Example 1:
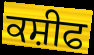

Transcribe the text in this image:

ਕਸ਼ੀਫ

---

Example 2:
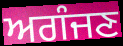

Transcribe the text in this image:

ਅਗੰਜਣ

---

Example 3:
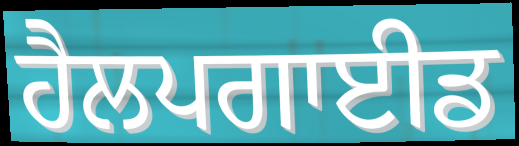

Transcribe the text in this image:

ਹੈਲਪਗਾਈਡ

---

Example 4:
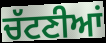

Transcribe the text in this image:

ਚੱਟਣੀਆਂ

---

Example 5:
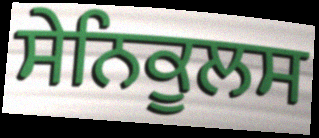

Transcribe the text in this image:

ਸੇਨਿਕੂਲਸ